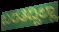
ಬರತಿದ್ದಿಲ್ಲಾ